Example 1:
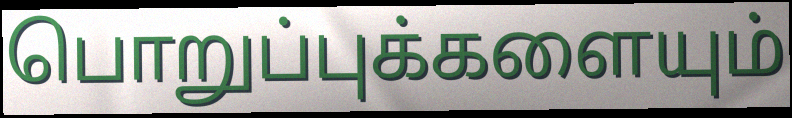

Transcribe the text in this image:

பொறுப்புக்களையும்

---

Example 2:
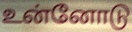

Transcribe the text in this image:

உன்னோடு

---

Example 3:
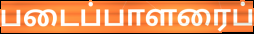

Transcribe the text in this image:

படைப்பாளரைப்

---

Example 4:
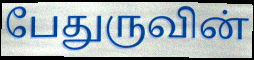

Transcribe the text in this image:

பேதுருவின்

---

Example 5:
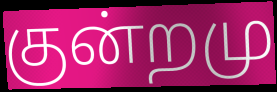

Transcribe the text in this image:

குன்றமு